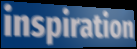
inspiration